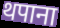
थपाना